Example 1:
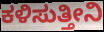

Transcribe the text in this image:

ಕಳಿಸುತ್ತೀನಿ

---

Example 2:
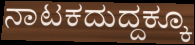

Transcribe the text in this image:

ನಾಟಕದುದ್ದಕ್ಕೂ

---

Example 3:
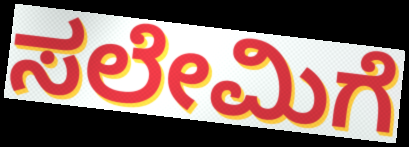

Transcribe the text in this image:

ಸಲೇಮಿಗೆ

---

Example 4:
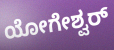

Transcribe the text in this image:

ಯೋಗೇಶ್ವರ್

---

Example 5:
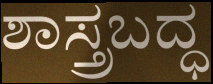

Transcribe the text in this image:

ಶಾಸ್ತ್ರಬದ್ಧ